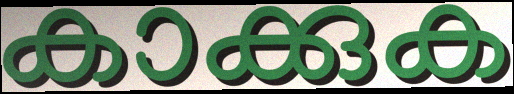
കാക്കുക